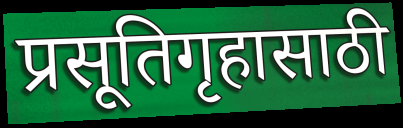
प्रसूतिगृहासाठी